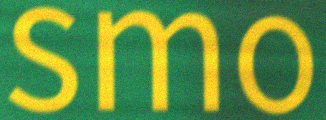
smo